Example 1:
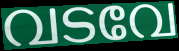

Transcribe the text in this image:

വടവേ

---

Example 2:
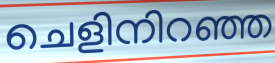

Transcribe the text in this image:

ചെളിനിറഞ്ഞ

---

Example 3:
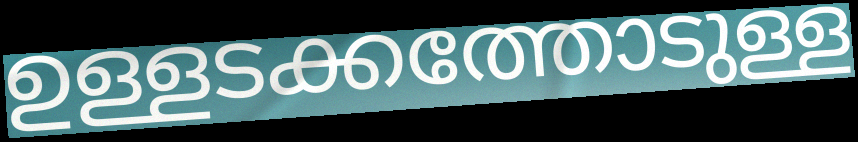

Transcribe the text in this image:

ഉള്ളടക്കത്തോടുള്ള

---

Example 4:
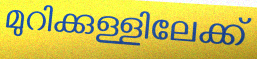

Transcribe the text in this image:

മുറിക്കുള്ളിലേക്ക്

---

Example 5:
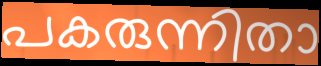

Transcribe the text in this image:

പകരുന്നിതാ